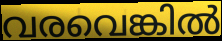
വരവെങ്കിൽ